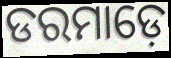
ଡରମାଡ଼େ